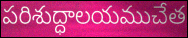
పరిశుద్ధాలయముచేత